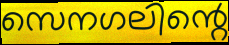
സെനഗലിന്റെ